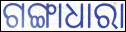
ଗଙ୍ଗାଧାରା